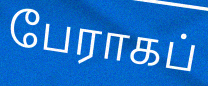
பேராகப்